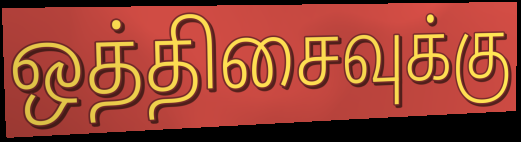
ஒத்திசைவுக்கு